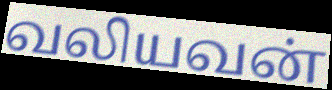
வலியவன்